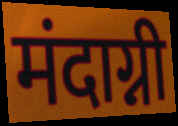
मंदाग्नी